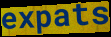
expats